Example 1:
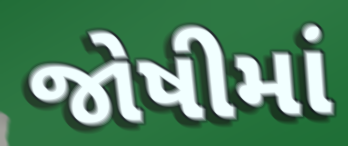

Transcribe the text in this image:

જોષીમાં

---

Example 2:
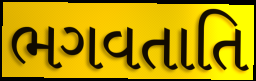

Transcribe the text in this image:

ભગવતાતિ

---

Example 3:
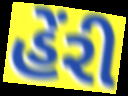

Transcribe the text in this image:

હેંરી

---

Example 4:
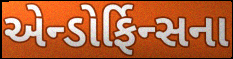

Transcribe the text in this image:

એન્ડોર્ફિન્સના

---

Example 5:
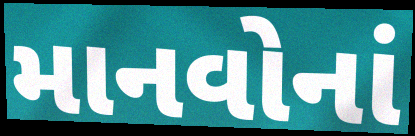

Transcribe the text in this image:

માનવોનાં